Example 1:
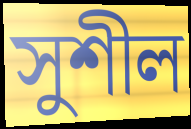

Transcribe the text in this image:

সুশীল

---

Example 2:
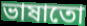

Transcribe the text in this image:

ভাষাতো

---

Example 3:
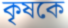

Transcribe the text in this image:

কৃষকে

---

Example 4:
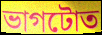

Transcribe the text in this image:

ভাগটোত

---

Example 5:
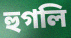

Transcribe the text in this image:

হুগলি